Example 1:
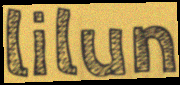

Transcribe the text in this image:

lilun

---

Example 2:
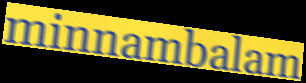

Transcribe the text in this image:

minnambalam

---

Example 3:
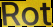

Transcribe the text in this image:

Rot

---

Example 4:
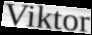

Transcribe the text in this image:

Viktor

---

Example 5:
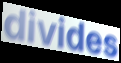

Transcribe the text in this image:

divides